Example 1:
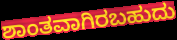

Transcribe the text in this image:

ಶಾಂತವಾಗಿರಬಹುದು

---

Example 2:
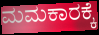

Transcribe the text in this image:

ಮಮಕಾರಕ್ಕೆ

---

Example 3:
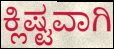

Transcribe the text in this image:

ಕ್ಲಿಷ್ಟವಾಗಿ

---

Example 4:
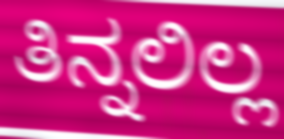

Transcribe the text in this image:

ತಿನ್ನಲಿಲ್ಲ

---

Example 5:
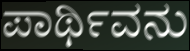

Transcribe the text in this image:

ಪಾರ್ಥಿವನು